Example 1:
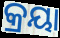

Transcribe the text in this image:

କ୍ରୟା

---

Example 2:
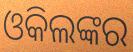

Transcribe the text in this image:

ଓକିଲଙ୍କର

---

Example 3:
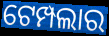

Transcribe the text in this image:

ଟେମ୍ପଲାର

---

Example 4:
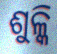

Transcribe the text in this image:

ଶୁଳ୍କି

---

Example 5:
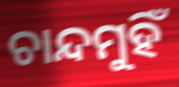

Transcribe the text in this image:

ଚାନ୍ଦମୁହିଁ